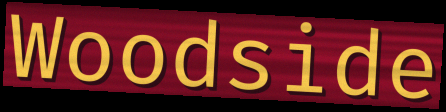
Woodside